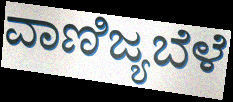
ವಾಣಿಜ್ಯಬೆಳೆ